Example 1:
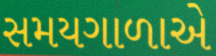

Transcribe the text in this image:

સમયગાળાએ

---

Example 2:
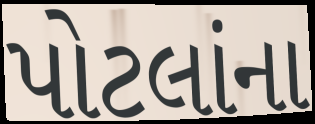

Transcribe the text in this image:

પોટલાંના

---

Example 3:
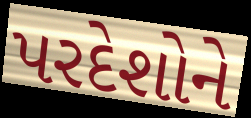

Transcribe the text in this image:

પરદેશોને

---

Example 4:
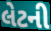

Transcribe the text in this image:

લેટની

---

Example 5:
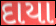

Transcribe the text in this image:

દાયા